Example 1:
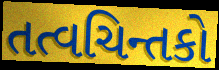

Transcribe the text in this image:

તત્વચિન્તકો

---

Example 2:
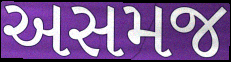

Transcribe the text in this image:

અસમજ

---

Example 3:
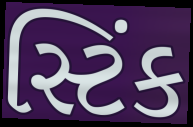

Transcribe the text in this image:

સ્ટિંક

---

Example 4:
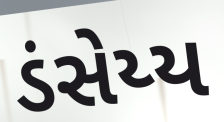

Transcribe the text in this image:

ડંસેય્ય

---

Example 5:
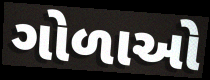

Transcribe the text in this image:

ગોળાઓ